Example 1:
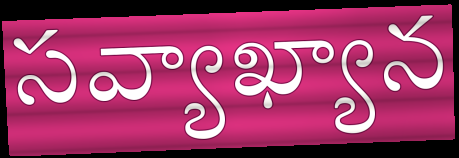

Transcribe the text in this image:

సవ్యాఖ్యాన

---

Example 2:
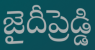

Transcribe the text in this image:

జైదీప్రెడ్డి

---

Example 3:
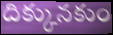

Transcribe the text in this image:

దిక్కునకుం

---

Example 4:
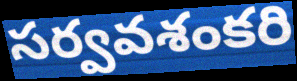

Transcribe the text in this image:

సర్వవశంకరి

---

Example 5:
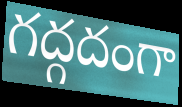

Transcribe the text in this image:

గద్గదంగా